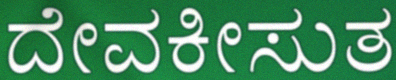
ದೇವಕೀಸುತ